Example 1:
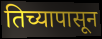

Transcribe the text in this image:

तिच्यापासून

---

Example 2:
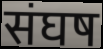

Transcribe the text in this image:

संघष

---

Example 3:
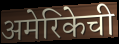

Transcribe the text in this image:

अमेरिकेची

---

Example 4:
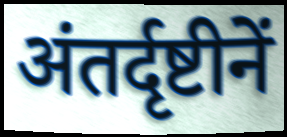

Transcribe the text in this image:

अंतर्दृष्टीनें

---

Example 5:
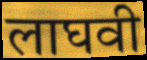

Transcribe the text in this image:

लाघवी